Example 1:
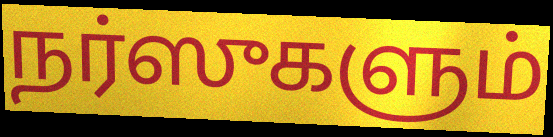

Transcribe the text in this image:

நர்ஸுகளும்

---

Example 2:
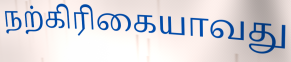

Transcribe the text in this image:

நற்கிரிகையாவது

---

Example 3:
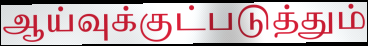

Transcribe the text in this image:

ஆய்வுக்குட்படுத்தும்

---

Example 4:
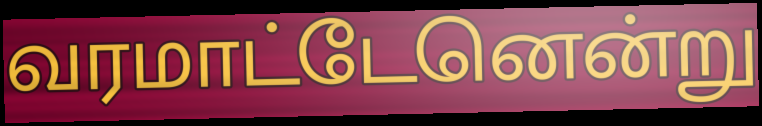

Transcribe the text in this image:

வரமாட்டேனென்று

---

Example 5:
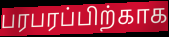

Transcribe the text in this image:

பரபரப்பிற்காக